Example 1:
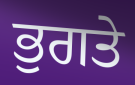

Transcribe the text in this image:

ਭੁਗਤੇ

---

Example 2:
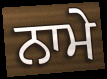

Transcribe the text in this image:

ਨਾਮੇ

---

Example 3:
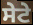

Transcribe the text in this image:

ਸੇਟੇ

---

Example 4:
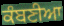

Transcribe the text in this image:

ਕੰਬਣੀਆ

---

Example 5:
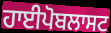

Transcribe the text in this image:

ਹਾਈਪੋਬਲਾਸਟ